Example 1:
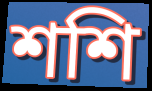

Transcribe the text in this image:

শশি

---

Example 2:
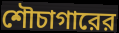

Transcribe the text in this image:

শৌচাগারের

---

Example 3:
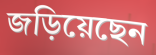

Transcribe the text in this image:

জড়িয়েছেন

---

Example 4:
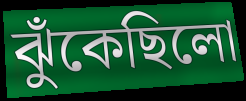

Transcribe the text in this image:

ঝুঁকেছিলো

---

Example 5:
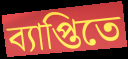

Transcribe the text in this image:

ব্যাপ্তিতে